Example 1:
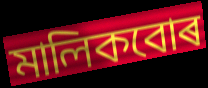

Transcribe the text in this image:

মালিকবোৰ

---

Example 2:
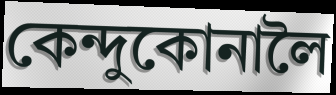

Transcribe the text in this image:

কেন্দুকোনালৈ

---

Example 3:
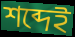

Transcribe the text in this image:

শব্দেই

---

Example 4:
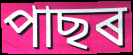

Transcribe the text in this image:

পাছৰ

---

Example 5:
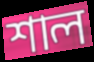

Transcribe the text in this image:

শাল